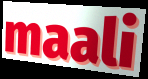
maali